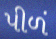
પીળં